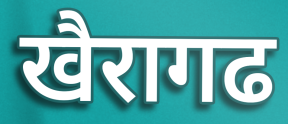
खैरागढ